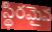
స్థిరమైన